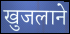
खुजलाने